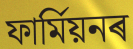
ফাৰ্মিয়নৰ